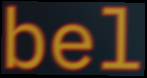
bel